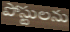
పోస్టులను